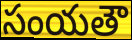
సంయతౌ